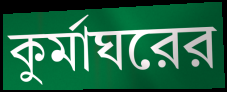
কুর্মাঘরের